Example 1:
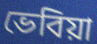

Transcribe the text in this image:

ভেবিয়া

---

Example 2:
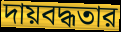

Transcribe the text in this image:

দায়বদ্ধতার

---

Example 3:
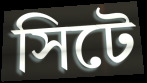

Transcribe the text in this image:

সিটে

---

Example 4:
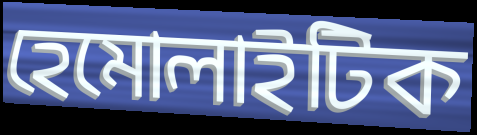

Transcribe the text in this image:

হেমোলাইটিক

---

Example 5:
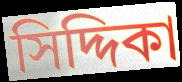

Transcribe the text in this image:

সিদ্দিকা